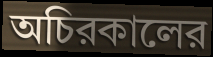
অচিরকালের